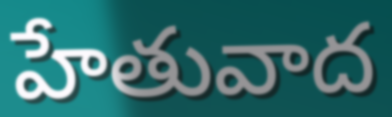
హేతువాద